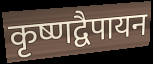
कृष्णद्वैपायन